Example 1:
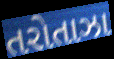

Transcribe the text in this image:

તરોતાઝા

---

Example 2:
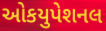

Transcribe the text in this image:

ઓકયુપેશનલ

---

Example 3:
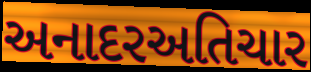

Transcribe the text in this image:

અનાદરઅતિચાર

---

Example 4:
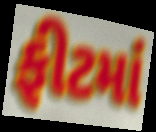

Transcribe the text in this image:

ફીટમાં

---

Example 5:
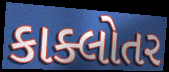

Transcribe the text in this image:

કાક્લોતર